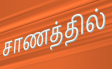
சாணத்தில்